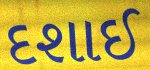
દશાઈ